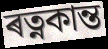
ৰত্নকান্ত